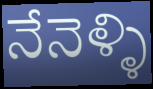
నేనెళ్ళి